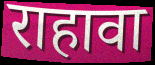
राहावा